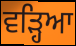
ਵੜ੍ਹਿਆ